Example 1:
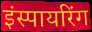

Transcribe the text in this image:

इंस्पायरिंग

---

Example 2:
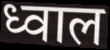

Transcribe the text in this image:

ध्वाल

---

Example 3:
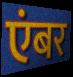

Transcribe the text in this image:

एंबर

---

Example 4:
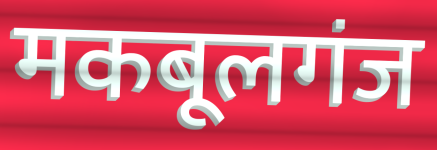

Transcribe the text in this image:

मकबूलगंज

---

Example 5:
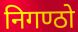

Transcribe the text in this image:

निगण्ठो